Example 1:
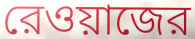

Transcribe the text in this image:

রেওয়াজের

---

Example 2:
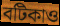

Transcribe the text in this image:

বটিকাও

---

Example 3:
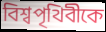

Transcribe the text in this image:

বিশ্বপৃথিবীকে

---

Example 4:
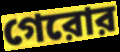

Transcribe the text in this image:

গেরোর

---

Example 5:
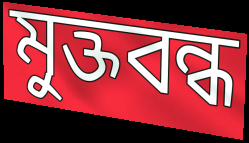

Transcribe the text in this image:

মুক্তবন্ধ